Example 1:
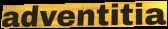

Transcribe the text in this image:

adventitia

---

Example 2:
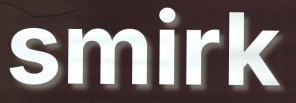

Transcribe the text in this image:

smirk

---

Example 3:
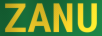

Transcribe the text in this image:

ZANU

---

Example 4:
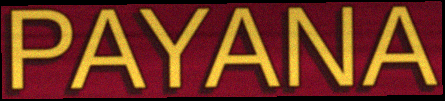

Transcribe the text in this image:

PAYANA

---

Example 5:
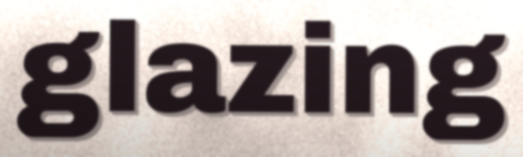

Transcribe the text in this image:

glazing